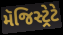
મૅજિસ્ટ્રેટે